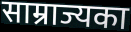
साम्राज्यका